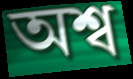
অশ্ব